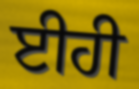
ਈਹੀ